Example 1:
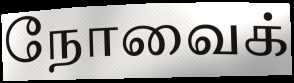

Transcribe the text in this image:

நோவைக்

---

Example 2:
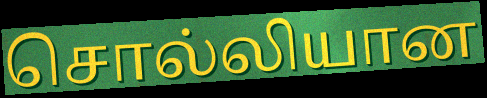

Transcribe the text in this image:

சொல்லியான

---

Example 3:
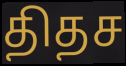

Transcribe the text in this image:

திதச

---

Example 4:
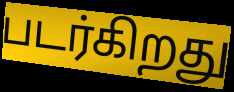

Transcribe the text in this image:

படர்கிறது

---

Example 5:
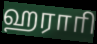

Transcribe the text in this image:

ஹராரி